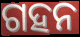
ଗହନ